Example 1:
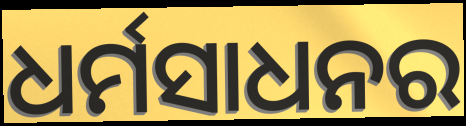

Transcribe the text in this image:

ଧର୍ମସାଧନର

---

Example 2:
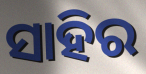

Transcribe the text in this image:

ସାହିର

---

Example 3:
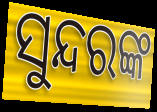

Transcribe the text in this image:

ସୁନ୍ଦରଙ୍କ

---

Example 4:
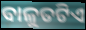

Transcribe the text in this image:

ବାଳୁତଟିଏ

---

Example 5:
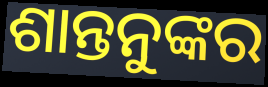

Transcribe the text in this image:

ଶାନ୍ତନୁଙ୍କର